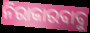
ନିରାକାରବାବୁ